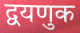
द्वयणुक